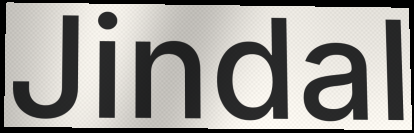
Jindal